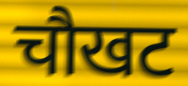
चौखट